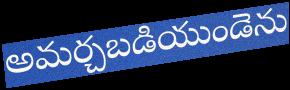
అమర్చబడియుండెను